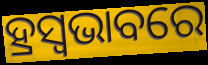
ହ୍ରସ୍ୱଭାବରେ